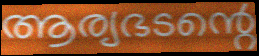
ആര്യഭടന്റെ